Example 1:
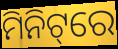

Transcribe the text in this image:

ମିନିଟ୍‌ରେ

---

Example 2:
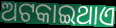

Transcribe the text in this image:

ଅଟକାଇଥାଏ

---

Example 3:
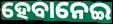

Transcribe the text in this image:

ହେବାନେଇ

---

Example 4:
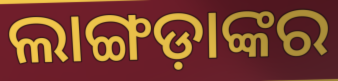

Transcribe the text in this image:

ଲାଙ୍ଗଡ଼ାଙ୍କର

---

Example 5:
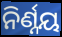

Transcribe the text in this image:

ନିର୍ଣ୍ନୟ